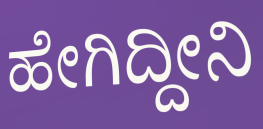
ಹೇಗಿದ್ದೀನಿ